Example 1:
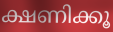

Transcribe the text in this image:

ക്ഷണിക്കൂ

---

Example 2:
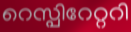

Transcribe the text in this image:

റെസ്പിറേറ്ററി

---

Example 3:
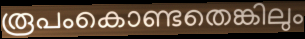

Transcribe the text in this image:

രൂപംകൊണ്ടതെങ്കിലും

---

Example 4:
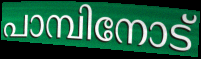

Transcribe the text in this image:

പാമ്പിനോട്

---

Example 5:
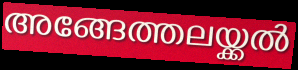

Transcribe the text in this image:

അങ്ങേത്തലയ്ക്കൽ